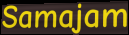
Samajam